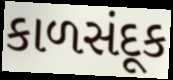
કાળસંદૂક